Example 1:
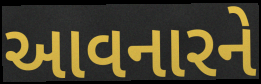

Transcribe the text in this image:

આવનારને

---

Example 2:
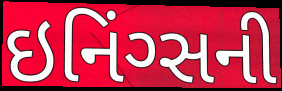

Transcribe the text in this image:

ઇનિંગ્સની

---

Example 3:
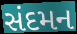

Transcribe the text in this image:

સંદમન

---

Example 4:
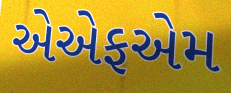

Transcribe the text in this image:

એએફએમ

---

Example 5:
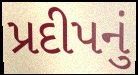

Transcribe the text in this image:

પ્રદીપનું